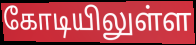
கோடியிலுள்ள